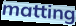
matting